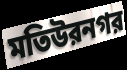
মতিউরনগর